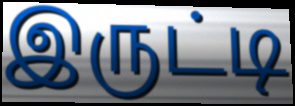
இருட்டி